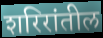
शरिरांतील